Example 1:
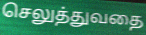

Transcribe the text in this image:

செலுத்துவதை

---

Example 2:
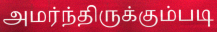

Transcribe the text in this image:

அமர்ந்திருக்கும்படி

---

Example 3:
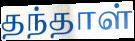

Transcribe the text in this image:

தந்தாள்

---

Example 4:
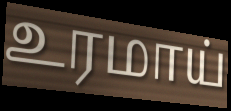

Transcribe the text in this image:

உரமாய்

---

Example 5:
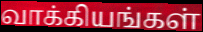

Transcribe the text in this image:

வாக்கியங்கள்